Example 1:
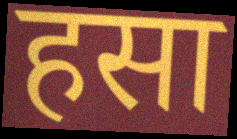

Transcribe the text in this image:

हसा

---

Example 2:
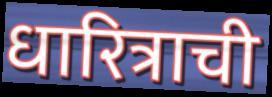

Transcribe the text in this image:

धारित्राची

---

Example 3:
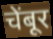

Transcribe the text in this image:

चेंबूर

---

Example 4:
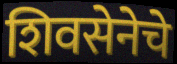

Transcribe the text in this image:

शिवसेनेचे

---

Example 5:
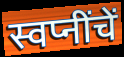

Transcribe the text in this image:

स्वप्नींचें